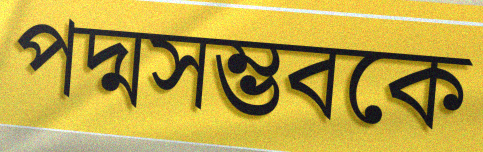
পদ্মসম্ভবকে